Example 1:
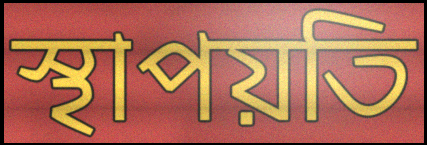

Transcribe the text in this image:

স্থাপয়তি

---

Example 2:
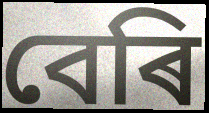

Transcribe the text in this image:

বেৰি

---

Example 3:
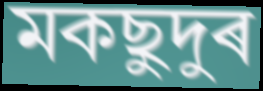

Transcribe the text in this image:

মকছুদুৰ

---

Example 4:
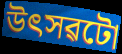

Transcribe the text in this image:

উৎসৱটো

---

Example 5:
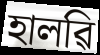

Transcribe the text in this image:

হালৱি